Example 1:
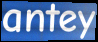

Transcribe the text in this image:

antey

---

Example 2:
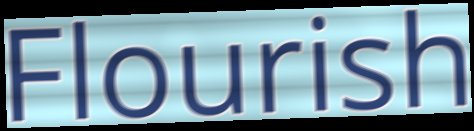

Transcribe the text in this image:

Flourish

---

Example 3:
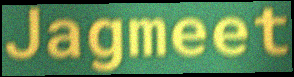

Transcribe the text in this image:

Jagmeet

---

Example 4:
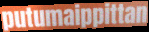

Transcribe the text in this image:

putumaippittan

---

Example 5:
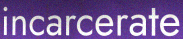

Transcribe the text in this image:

incarcerate